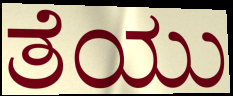
ತೆಯು